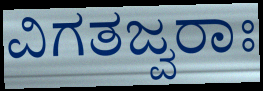
ವಿಗತಜ್ವರಾಃ